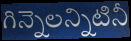
గిన్నెలన్నిటినీ